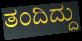
ತಂದಿದ್ದು